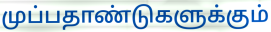
முப்பதாண்டுகளுக்கும்